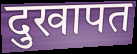
दुखापत